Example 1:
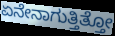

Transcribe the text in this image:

ಏನೇನಾಗುತ್ತಿತ್ತೋ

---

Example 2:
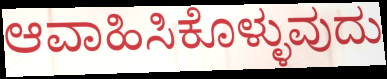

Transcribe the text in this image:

ಆವಾಹಿಸಿಕೊಳ್ಳುವುದು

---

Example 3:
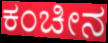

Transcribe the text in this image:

ಕಂಚೀನ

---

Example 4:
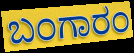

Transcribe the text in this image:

ಬಂಗಾರಂ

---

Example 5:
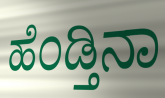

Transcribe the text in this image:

ಹೆಂಡ್ತಿನಾ